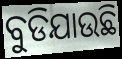
ବୁଡିଯାଉଛି